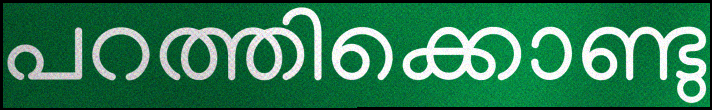
പറത്തിക്കൊണ്ടു